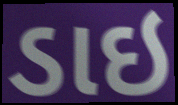
ડાઇ